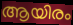
ആയിരം